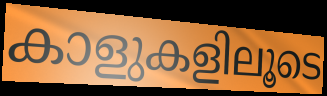
കാളുകളിലൂടെ